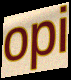
opi